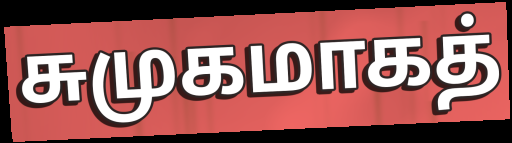
சுமுகமாகத்